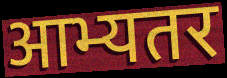
आभ्यतर